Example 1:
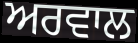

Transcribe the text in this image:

ਅਰਵਾਲ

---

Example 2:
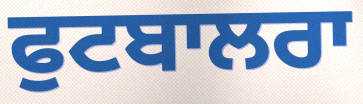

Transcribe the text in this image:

ਫੁਟਬਾਲਰਾ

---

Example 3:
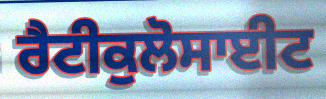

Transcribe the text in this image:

ਰੈਟੀਕੁਲੋਸਾਈਟ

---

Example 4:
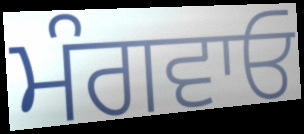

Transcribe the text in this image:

ਮੰਗਵਾਓ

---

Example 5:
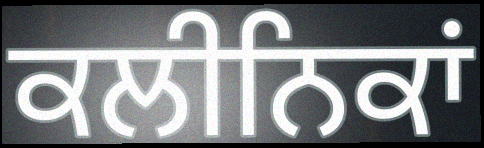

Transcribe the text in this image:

ਕਲੀਨਿਕਾਂ